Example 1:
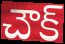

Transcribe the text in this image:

చౌక్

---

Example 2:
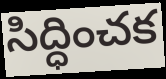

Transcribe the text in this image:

సిద్ధించక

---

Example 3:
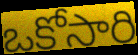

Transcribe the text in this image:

ఒకోసారి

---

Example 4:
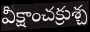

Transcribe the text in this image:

వీక్షాంచక్రుశ్చ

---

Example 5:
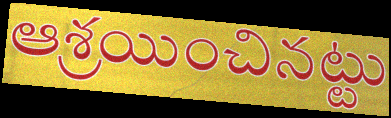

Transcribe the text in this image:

ఆశ్రయించినట్టు